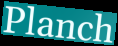
Planch